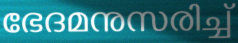
ഭേദമനുസരിച്ച്